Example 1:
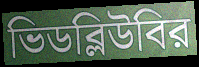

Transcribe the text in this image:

ভিডব্লিউবির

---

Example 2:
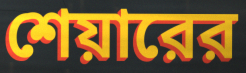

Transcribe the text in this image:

শেয়ারের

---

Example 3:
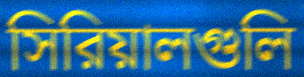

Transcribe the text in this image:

সিরিয়ালগুলি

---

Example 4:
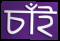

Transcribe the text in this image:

চাঁই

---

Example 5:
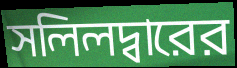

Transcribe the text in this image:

সলিলদ্বারের